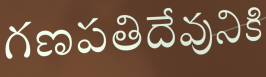
గణపతిదేవునికి